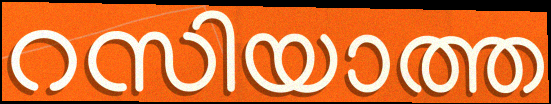
റസിയാത്ത